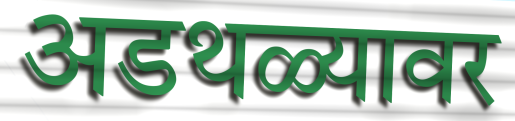
अडथळ्यावर